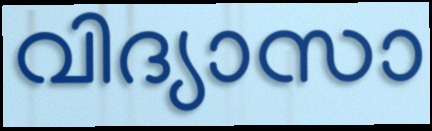
വിദ്യാസാ